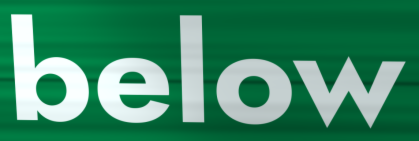
below